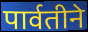
पार्वतीने